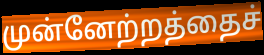
முன்னேற்றத்தைச்